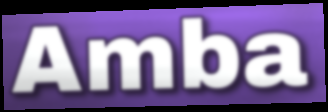
Amba